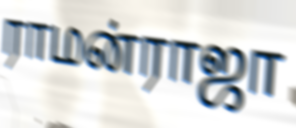
ராமன்ராஜா